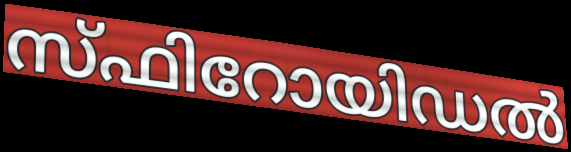
സ്ഫിറോയിഡൽ